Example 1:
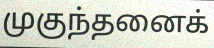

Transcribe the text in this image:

முகுந்தனைக்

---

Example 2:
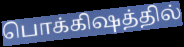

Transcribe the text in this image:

பொக்கிஷத்தில்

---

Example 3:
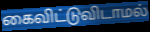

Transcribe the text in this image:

கைவிட்டுவிடாமல்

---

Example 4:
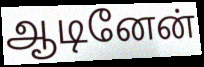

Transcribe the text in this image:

ஆடினேன்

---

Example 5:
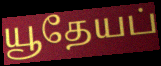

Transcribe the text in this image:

யூதேயப்